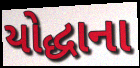
યોદ્ધાના